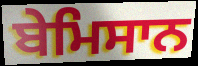
ਬੇਮਿਸਾਨ